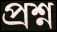
প্ৰশ্ন